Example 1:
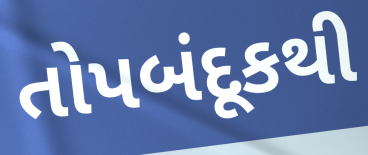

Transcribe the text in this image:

તોપબંદૂકથી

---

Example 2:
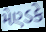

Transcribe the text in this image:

મેણ્ડકે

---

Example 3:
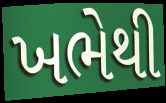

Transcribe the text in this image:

ખભેથી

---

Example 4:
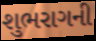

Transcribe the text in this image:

શુભરાગની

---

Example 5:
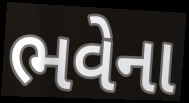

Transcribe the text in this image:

ભવેના